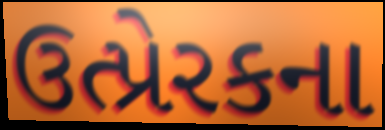
ઉત્પ્રેરકના